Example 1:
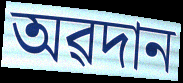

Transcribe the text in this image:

অৱদান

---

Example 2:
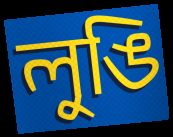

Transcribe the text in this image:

লুঙি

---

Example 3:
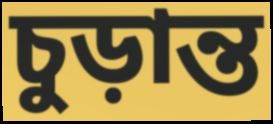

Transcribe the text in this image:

চুড়ান্ত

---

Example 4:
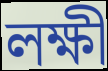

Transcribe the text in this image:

লক্ষী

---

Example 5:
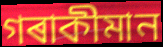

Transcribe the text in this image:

গৰাকীমান